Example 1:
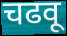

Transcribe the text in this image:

चढवू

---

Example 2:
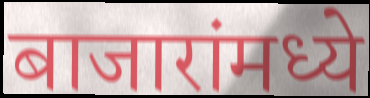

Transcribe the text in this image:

बाजारांमध्ये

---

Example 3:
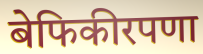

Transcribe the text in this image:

बेफिकीरपणा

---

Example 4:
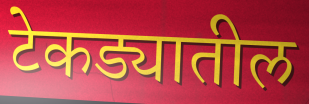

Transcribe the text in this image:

टेकड्यातील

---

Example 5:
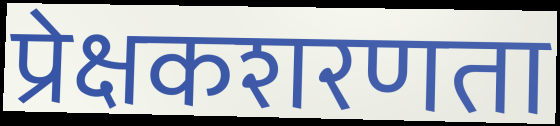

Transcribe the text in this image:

प्रेक्षकशरणता